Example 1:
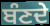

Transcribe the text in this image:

ਬੰਣਦੇ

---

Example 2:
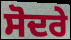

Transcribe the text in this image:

ਸੋਦਰੇ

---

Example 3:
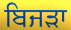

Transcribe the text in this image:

ਬਿਜੜਾ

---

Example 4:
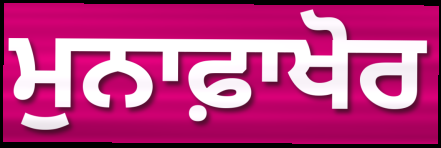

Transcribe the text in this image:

ਮੁਨਾਫ਼ਾਖੋਰ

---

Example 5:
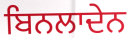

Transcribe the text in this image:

ਬਿਨਲਾਦੇਨ